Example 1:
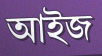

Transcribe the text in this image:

আইজ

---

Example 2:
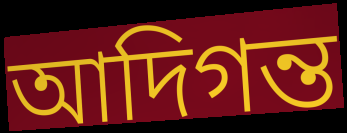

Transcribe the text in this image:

আদিগন্ত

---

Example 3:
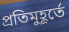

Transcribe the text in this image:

প্রতিমুহূর্তে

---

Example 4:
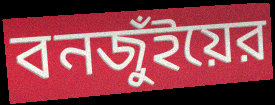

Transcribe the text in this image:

বনজুঁইয়ের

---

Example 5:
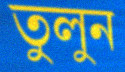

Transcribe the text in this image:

তুলুন